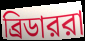
ব্রিডাররা